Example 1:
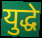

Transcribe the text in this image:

युद्धे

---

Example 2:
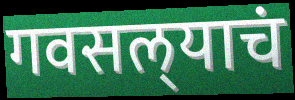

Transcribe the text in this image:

गवसल्याचं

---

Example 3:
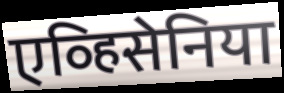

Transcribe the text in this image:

एव्हिसेनिया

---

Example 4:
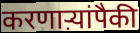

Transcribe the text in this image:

करणाऱ्‍यांपैकी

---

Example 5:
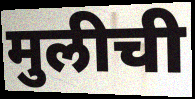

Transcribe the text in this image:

मुलीची